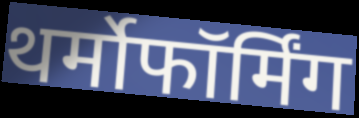
थर्मोफॉर्मिंग